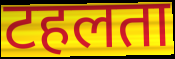
टहलता